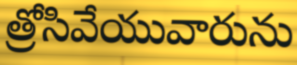
త్రోసివేయువారును